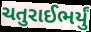
ચતુરાઈભર્યું